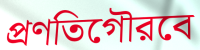
প্রণতিগৌরবে